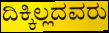
ದಿಕ್ಕಿಲ್ಲದವರು